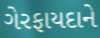
ગેરફાયદાને